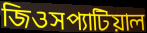
জিওসপ্যাটিয়াল